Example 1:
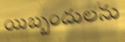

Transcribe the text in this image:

యిబ్బందులను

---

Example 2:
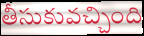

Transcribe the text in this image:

తీసుకువచ్చింది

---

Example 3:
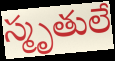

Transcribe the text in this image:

స్మృతులే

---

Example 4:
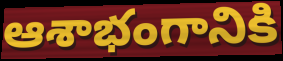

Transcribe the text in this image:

ఆశాభంగానికి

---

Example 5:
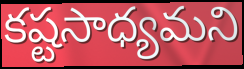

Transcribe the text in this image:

కష్టసాధ్యమని